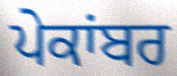
ਪੇਕਾਂਬਰ